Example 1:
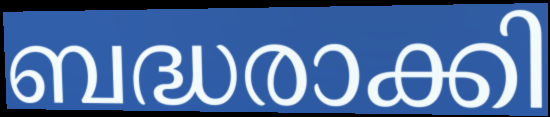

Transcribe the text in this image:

ബദ്ധരാക്കി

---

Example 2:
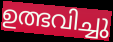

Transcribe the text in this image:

ഉത്ഭവിച്ചു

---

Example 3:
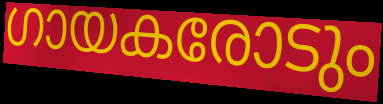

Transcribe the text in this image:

ഗായകരോടും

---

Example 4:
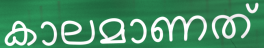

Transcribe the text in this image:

കാലമാണത്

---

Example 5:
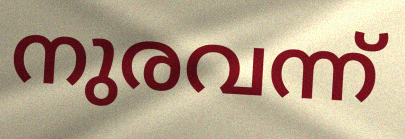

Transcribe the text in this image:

നുരവന്ന്